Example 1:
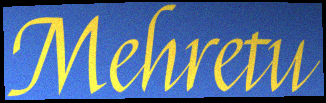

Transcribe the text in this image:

Mehretu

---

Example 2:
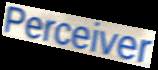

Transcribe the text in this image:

Perceiver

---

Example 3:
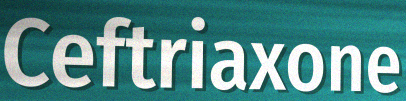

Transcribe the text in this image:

Ceftriaxone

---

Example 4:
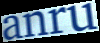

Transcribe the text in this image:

anru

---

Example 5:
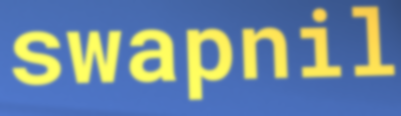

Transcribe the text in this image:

swapnil